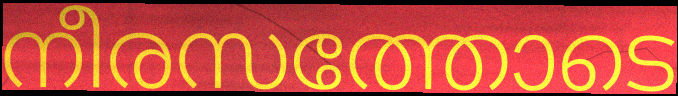
നീരസത്തോടെ